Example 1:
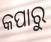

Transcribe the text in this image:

କପାରୁ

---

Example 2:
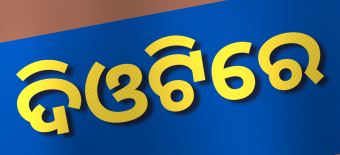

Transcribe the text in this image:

ଦିଓଟିରେ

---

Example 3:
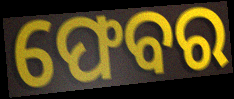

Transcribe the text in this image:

ଫେବର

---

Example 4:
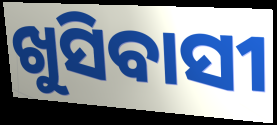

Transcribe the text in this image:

ଖୁସିବାସୀ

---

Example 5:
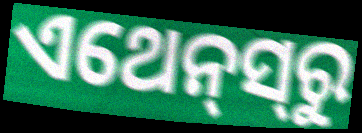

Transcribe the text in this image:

ଏଥେନ୍‌ସ୍‌ରୁ